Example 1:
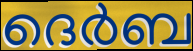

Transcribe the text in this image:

ദെർബ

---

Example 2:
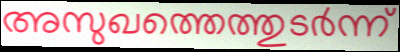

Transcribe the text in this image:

അസുഖത്തെത്തുടർന്ന്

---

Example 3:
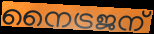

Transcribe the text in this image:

നൈട്രജന്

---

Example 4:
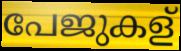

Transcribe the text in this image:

പേജുകള്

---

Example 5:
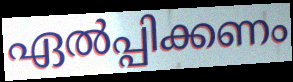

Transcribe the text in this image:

ഏൽപ്പിക്കണം